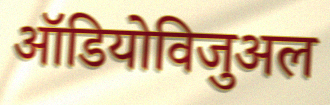
ऑडियोविजुअल